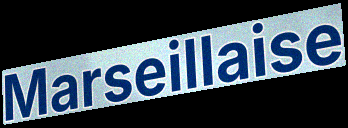
Marseillaise